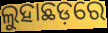
ଲୁହାଛଡ଼ରେ